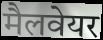
मैलवेयर